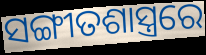
ସଙ୍ଗୀତଶାସ୍ତ୍ରରେ